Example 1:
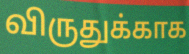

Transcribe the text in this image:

விருதுக்காக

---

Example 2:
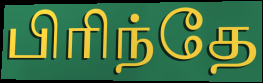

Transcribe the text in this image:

பிரிந்தே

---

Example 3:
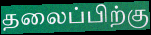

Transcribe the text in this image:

தலைப்பிற்கு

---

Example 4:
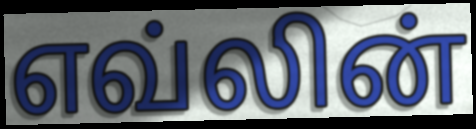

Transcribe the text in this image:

எவ்லின்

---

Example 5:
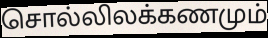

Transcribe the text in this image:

சொல்லிலக்கணமும்